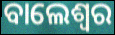
ବାଲେଶ୍ବର